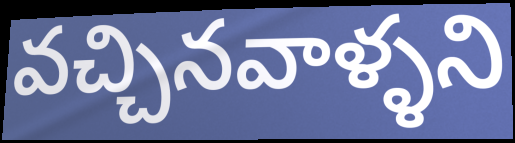
వచ్చినవాళ్ళని